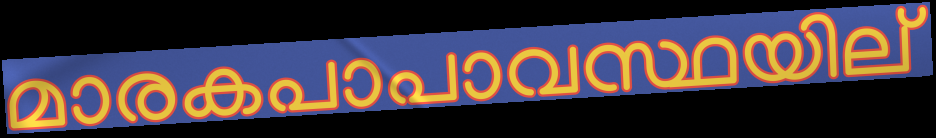
മാരകപാപാവസ്ഥയില്